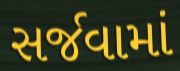
સર્જવામાં